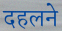
दहलने